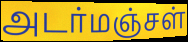
அடர்மஞ்சள்